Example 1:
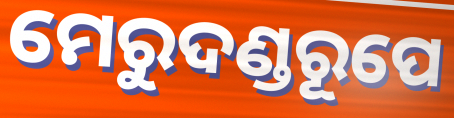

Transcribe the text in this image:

ମେରୁଦଣ୍ଡରୂପେ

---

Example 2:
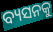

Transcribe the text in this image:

ବ୍ୟସନକୁ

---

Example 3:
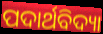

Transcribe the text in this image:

ପଦାର୍ଥବିଦ୍ୟା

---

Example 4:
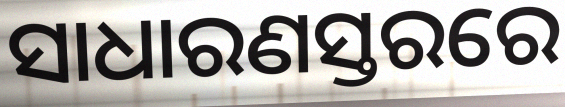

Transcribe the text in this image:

ସାଧାରଣସ୍ତରରେ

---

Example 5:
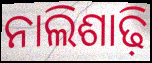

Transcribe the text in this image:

ନାଲିଶାଢ଼ି